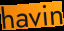
havin